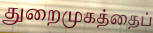
துறைமுகத்தைப்